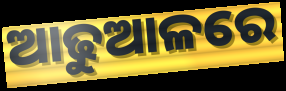
ଆଢୁଆଳରେ